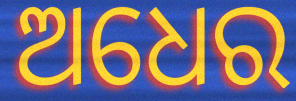
ଅଧେର